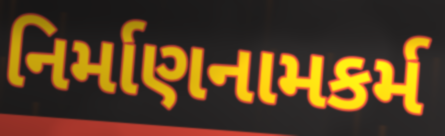
નિર્માણનામકર્મ